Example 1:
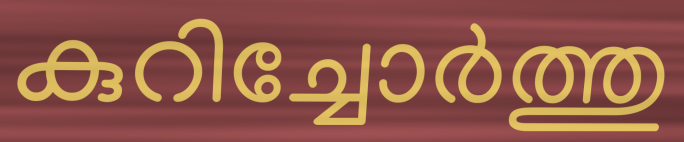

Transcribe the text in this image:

കുറിച്ചോർത്തു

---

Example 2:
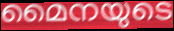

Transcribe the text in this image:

മൈനയുടെ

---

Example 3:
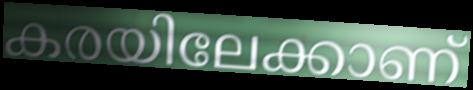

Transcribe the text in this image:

കരയിലേക്കാണ്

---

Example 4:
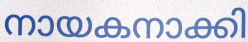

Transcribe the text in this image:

നായകനാക്കി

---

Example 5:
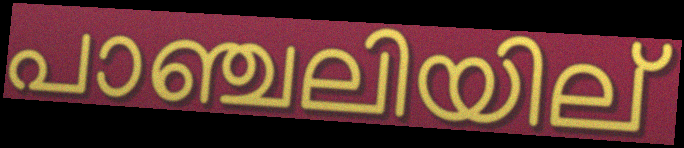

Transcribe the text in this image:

പാഞ്ചലിയില്